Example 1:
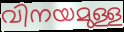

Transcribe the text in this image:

വിനയമുള്ള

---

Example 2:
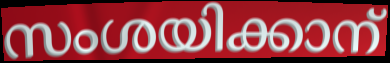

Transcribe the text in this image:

സംശയിക്കാന്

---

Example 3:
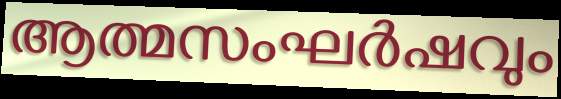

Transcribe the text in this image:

ആത്മസംഘർഷവും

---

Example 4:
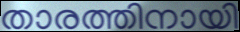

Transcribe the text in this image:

താരത്തിനായി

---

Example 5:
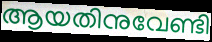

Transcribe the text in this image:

ആയതിനുവേണ്ടി